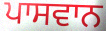
ਪਾਸਵਾਨ